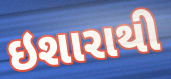
ઇશારાથી